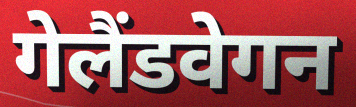
गेलैंडवेगन